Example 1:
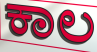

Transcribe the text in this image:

ಕಾಲ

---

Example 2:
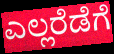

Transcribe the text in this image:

ಎಲ್ಲರೆಡೆಗೆ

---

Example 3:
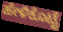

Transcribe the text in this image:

ಹೇಳಿಕೊಟ್ಟೆ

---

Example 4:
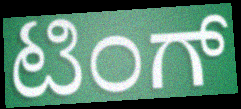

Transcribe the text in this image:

ಟಿಂಗ್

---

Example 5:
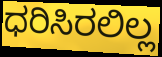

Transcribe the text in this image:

ಧರಿಸಿರಲಿಲ್ಲ